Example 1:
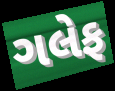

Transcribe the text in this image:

ગલેફ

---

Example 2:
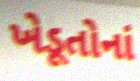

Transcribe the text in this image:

ખેડૂતોનાં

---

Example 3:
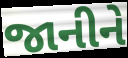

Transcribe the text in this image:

જાનીને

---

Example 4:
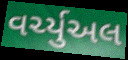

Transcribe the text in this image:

વર્ચ્યુઅલ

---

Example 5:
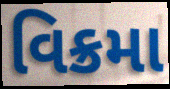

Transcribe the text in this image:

વિક્રમા